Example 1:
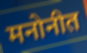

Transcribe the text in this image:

मनोनीत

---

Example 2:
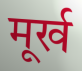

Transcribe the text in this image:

मूर्ख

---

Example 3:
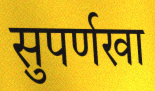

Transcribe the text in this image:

सुपर्णखा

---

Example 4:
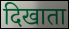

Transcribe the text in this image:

दिखाता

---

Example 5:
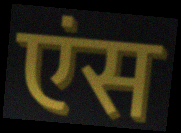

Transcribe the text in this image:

एंस